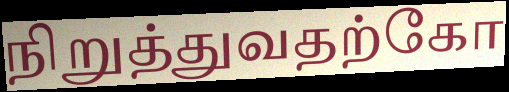
நிறுத்துவதற்கோ